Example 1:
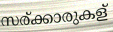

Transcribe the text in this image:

സര്ക്കാരുകള്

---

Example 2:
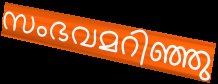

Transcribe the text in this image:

സംഭവമറിഞ്ഞു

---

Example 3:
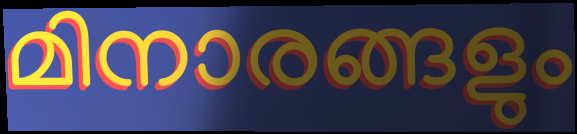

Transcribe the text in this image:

മിനാരങ്ങളും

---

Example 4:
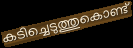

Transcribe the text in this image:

കടിച്ചെടുത്തുകൊണ്ട്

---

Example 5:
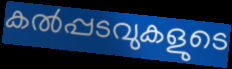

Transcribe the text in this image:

കൽപ്പടവുകളുടെ